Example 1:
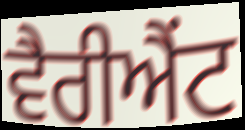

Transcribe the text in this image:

ਵੈਰੀਐਂਟ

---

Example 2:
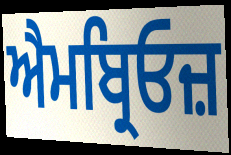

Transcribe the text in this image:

ਐਮਬ੍ਰਿਓਜ਼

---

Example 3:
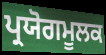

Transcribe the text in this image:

ਪ੍ਰਯੋਗਮੂਲਕ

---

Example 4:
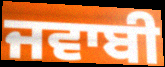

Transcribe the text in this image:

ਜਵਾਬੀ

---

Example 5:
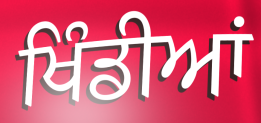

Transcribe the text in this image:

ਖਿੰਡੀਆਂ